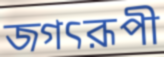
জগৎরূপী